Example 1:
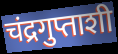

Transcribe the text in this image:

चंद्रगुप्ताशी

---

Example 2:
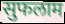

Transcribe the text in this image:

सुफलाम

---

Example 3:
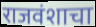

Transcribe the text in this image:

राजवंशाचा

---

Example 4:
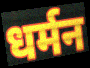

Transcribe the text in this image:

धर्मन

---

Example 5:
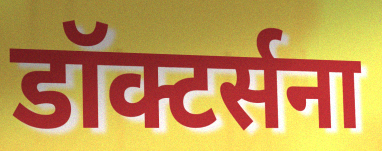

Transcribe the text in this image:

डॉक्टर्सना